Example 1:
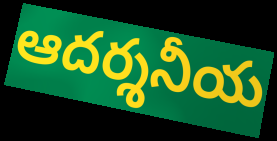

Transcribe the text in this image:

ఆదర్శనీయ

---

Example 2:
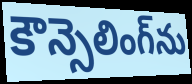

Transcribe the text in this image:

కౌన్సెలింగ్‌ను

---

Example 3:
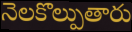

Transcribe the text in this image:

నెలకొల్పుతారు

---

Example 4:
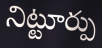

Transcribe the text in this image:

నిట్టూర్పు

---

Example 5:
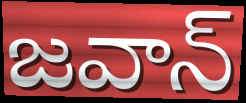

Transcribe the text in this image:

జవాన్